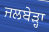
ਜਲਬੇੜ੍ਹਾ